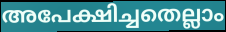
അപേക്ഷിച്ചതെല്ലാം